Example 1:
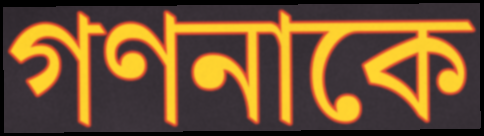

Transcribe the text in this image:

গণনাকে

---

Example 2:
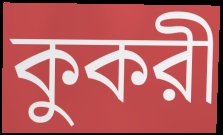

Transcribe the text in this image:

কুকরী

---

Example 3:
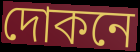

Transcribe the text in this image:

দোকনে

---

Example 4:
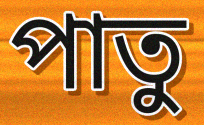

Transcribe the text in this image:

পাতু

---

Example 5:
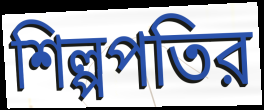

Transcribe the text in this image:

শিল্পপতির